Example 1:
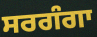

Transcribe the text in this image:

ਸਰਗੰਗਾ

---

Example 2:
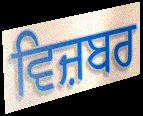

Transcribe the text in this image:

ਵਿਜ਼ਬਰ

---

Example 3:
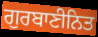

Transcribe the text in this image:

ਗੁਰਬਾਣੀਨਿਤ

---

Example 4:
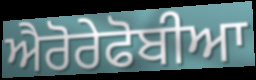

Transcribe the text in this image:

ਐਰੋਰੇਫੋਬੀਆ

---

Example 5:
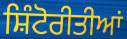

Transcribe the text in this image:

ਸ਼ਿੰਟੋਰੀਤੀਆਂ